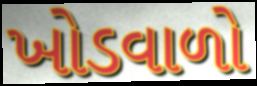
ખોડવાળો